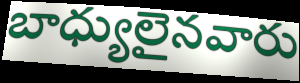
బాధ్యులైనవారు